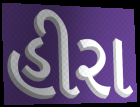
હીરા